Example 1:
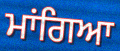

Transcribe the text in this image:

ਮਾਂਗਿਆ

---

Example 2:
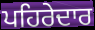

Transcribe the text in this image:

ਪਹਿਰੇਦਾਰ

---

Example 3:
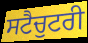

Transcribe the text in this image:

ਸਟੈਚੁਟਰੀ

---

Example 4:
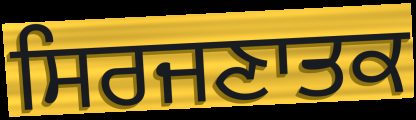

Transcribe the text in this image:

ਸਿਰਜਣਾਤਕ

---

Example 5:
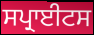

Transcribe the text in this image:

ਸਪ੍ਰਾਈਟਸ